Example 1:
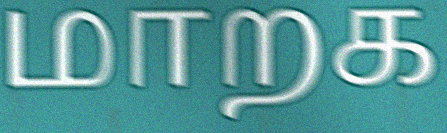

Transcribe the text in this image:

மாறக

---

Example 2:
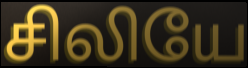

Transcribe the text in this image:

சிலியே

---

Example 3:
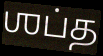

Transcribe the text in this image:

ஶப்த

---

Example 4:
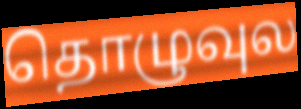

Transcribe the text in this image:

தொழுவுல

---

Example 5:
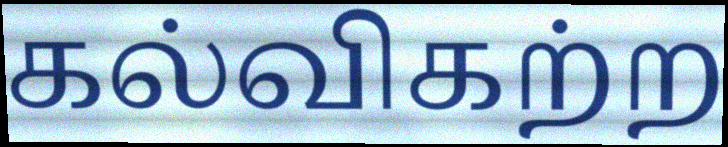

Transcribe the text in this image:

கல்விகற்ற